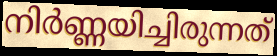
നിർണ്ണയിച്ചിരുന്നത്